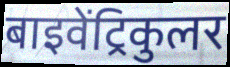
बाइवेंट्रिकुलर